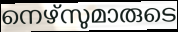
നെഴ്സുമാരുടെ